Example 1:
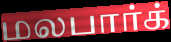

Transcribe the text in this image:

மலபார்க்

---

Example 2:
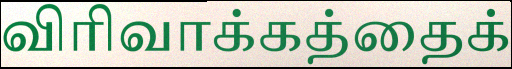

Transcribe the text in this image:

விரிவாக்கத்தைக்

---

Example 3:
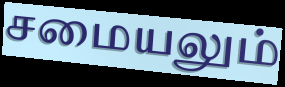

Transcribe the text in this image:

சமையலும்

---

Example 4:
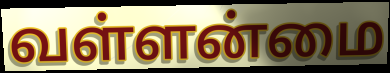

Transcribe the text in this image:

வள்ளன்மை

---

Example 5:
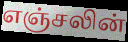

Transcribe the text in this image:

எஞ்சலின்